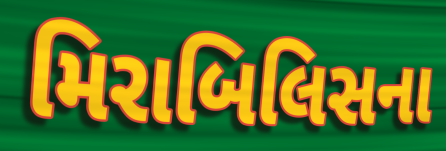
મિરાબિલિસના